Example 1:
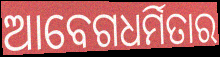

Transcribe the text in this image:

ଆବେଗଧର୍ମିତାର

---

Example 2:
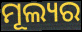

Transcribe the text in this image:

ମୂଲ୍ୟର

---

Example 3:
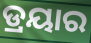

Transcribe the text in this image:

ଡ୍ରୟାର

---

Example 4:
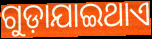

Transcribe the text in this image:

ଗୁଡ଼ାଯାଇଥାଏ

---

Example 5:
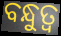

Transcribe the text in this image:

ବନ୍ଧୁତ୍ୱ